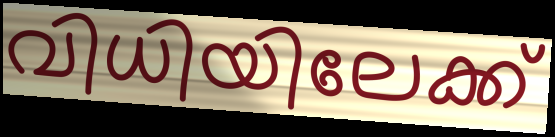
വിധിയിലേക്ക്